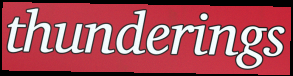
thunderings